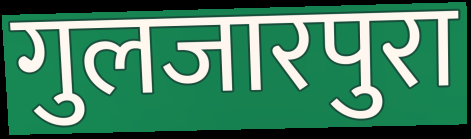
गुलजारपुरा